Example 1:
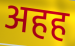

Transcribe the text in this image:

अहह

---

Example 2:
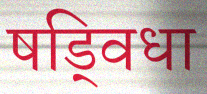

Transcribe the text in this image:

षड्विधा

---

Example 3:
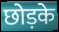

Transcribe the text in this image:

छोड़के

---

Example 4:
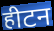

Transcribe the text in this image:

हीटन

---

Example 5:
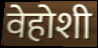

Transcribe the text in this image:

वेहोशी